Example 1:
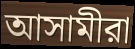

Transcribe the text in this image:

আসামীরা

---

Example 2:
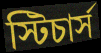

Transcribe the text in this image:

স্টিচার্স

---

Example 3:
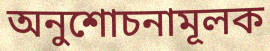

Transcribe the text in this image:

অনুশোচনামূলক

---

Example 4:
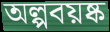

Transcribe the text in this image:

অল্পবয়ষ্ক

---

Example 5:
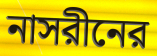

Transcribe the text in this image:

নাসরীনের